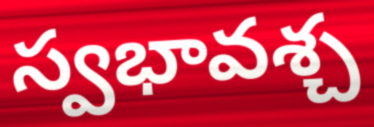
స్వభావశ్చ